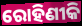
ରୋହିଣୀକି